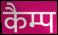
कैम्प